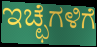
ಇಚ್ಛೆಗಳಿಗೆ